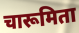
चारूमिता